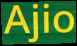
Ajio